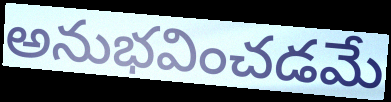
అనుభవించడమే